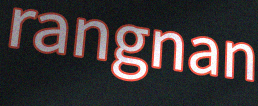
rangnan